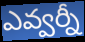
ఎవ్వర్నీ